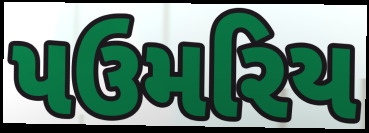
પઉમરિય